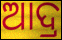
ଆଦ୍ର